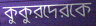
কুকুরদেরকে